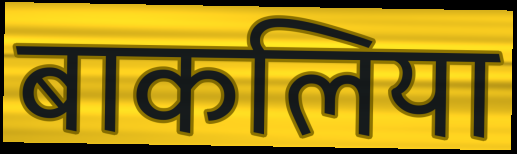
बाकलिया